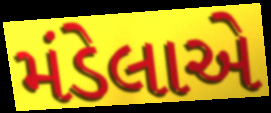
મંડેલાએ